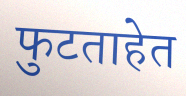
फुटताहेत